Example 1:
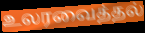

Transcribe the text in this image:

உலரவைத்தல்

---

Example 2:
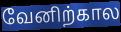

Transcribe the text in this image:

வேனிற்கால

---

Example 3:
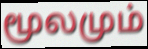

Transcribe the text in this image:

மூலமும்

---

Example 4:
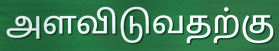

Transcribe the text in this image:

அளவிடுவதற்கு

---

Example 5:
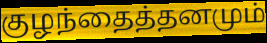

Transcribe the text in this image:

குழந்தைத்தனமும்